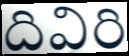
దివిరి